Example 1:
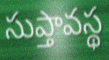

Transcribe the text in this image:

సుప్తావస్థ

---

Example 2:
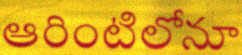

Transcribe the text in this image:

ఆరింటిలోనూ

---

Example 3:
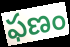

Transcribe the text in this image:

ఫణం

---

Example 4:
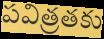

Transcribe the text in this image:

పవిత్రతకు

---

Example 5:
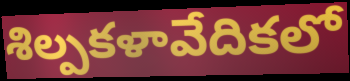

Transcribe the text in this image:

శిల్పకళావేదికలో